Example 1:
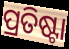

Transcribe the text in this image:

ପ୍ରତିଷ୍ଟା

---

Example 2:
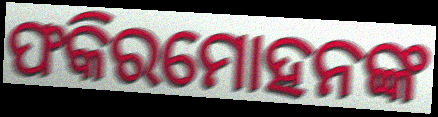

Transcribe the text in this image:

ଫକିରମୋହନଙ୍କ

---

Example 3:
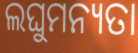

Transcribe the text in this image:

ଲଘୁମନ୍ୟତା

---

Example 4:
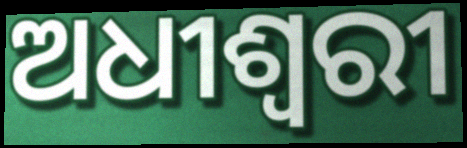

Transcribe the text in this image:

ଅଧୀଶ୍ୱରୀ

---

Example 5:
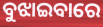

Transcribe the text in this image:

ବୁଝାଇବାରେ